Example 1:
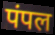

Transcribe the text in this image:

पंपल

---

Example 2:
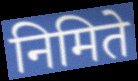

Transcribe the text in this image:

निमिते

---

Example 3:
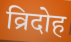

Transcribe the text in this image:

व्रिदोह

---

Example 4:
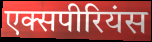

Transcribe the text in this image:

एक्‍सपीरियंस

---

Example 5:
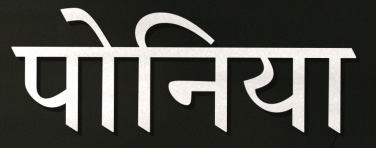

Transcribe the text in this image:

पोनिया